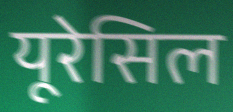
यूरेसिल